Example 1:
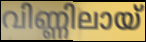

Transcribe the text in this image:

വിണ്ണിലായ്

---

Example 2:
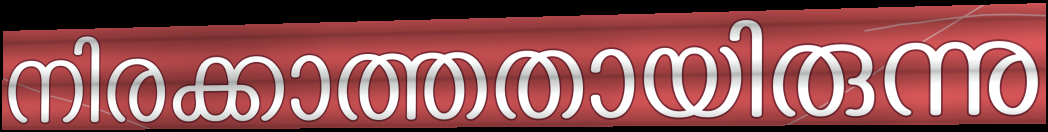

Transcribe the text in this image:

നിരക്കാത്തതായിരുന്നു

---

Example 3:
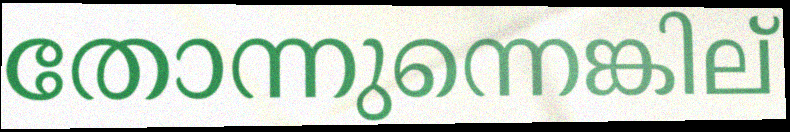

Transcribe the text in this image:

തോന്നുന്നെങ്കില്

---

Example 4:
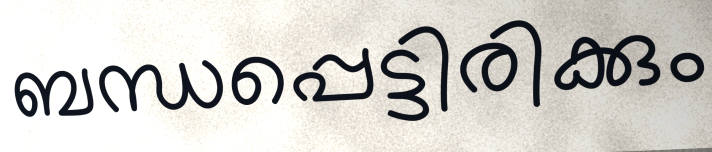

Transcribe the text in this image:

ബന്ധപ്പെട്ടിരിക്കും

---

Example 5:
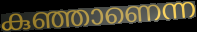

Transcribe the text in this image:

കുഞ്ഞാണെന്ന